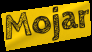
Mojar